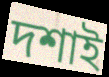
দশাই